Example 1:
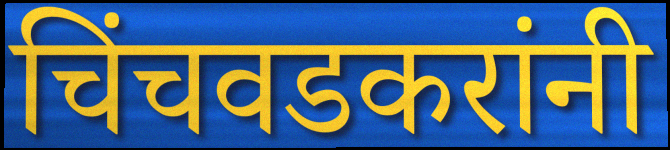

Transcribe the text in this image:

चिंचवडकरांनी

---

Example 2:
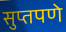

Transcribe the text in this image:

सुप्तपणे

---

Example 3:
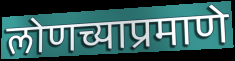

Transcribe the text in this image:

लोणच्याप्रमाणे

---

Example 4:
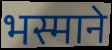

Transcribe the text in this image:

भस्माने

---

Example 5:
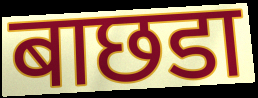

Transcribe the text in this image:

बाछडा